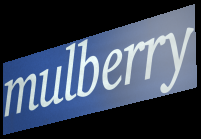
mulberry